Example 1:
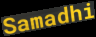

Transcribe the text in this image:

Samadhi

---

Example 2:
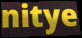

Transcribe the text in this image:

nitye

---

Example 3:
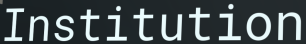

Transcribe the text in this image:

Institution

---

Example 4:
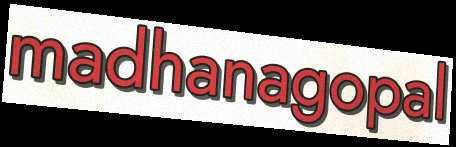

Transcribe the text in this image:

madhanagopal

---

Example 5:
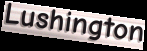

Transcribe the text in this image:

Lushington